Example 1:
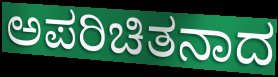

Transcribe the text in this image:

ಅಪರಿಚಿತನಾದ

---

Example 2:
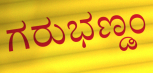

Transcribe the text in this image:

ಗರುಭಣ್ಡಂ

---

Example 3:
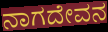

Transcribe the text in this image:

ನಾಗದೇವನ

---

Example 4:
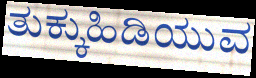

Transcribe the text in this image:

ತುಕ್ಕುಹಿಡಿಯುವ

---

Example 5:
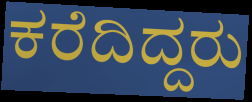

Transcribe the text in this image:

ಕರೆದಿದ್ದರು